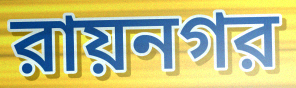
রায়নগর